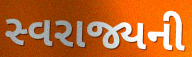
સ્વરાજ્યની